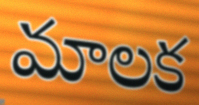
మాలక